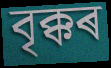
বৃক্কৰ